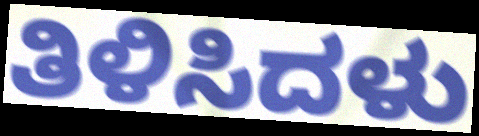
ತಿಳಿಸಿದಳು